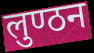
लुण्ठन